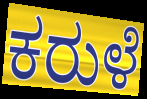
ಕರುಳೆ